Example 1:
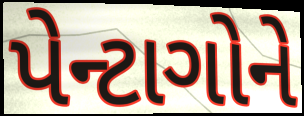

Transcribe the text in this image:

પેન્ટાગોને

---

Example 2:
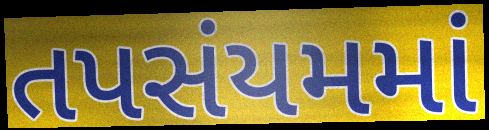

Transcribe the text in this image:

તપસંયમમાં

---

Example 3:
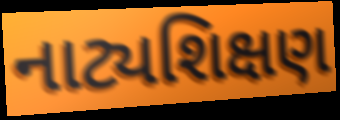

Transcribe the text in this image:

નાટ્યશિક્ષણ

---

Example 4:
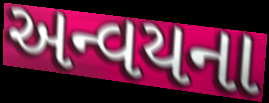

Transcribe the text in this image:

અન્વયના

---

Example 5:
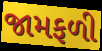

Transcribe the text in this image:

જામફળી